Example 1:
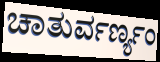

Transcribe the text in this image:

ಚಾತುರ್ವರ್ಣ್ಯಂ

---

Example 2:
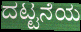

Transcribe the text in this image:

ದಟ್ಟನೆಯ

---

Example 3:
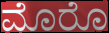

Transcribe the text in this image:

ಮೊರೊ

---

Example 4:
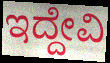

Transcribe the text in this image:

ಇದ್ದೇವಿ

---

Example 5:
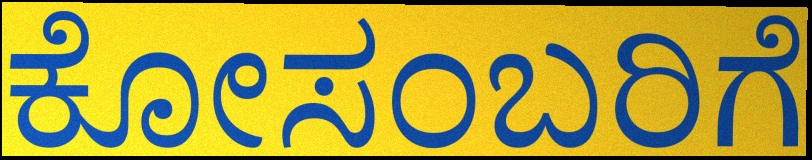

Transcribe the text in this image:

ಕೋಸಂಬರಿಗೆ